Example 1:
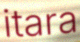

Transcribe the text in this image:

itara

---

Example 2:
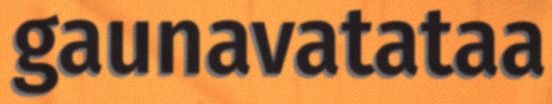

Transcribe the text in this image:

gaunavatataa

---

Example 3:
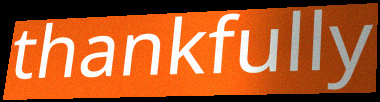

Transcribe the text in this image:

thankfully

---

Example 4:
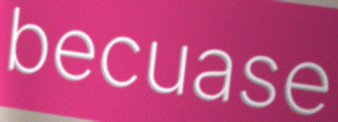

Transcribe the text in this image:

becuase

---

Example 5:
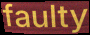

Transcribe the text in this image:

faulty